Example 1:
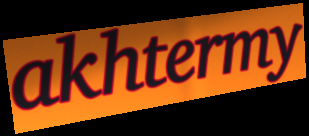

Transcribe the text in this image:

akhtermy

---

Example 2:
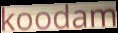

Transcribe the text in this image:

koodam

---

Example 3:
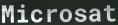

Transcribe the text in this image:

Microsat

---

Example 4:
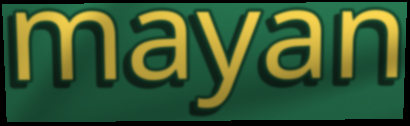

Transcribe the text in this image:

mayan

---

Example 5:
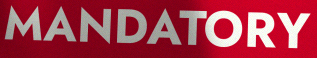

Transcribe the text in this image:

MANDATORY